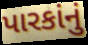
પારકાંનું